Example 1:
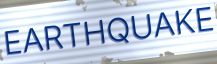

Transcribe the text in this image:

EARTHQUAKE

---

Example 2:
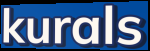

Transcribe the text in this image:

kurals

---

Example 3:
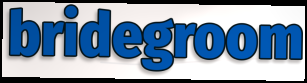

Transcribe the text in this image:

bridegroom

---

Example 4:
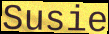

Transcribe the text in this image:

Susie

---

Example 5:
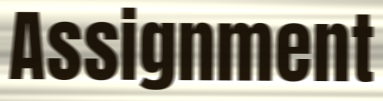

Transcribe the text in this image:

Assignment